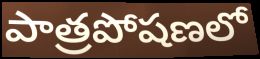
పాత్రపోషణలో